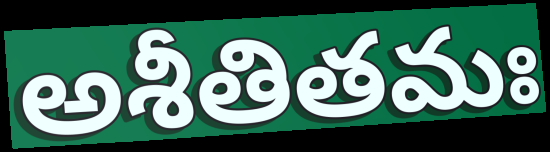
అశీతితమః